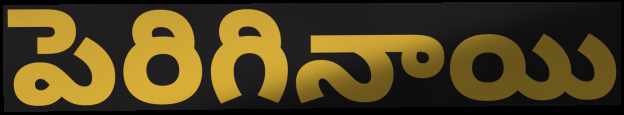
పెరిగినాయి